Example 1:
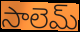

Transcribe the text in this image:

సాలెమ్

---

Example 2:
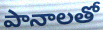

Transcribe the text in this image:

పానాలతో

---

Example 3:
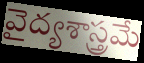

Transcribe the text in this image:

వైద్యశాస్త్రమే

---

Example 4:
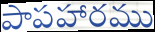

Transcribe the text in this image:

పాపహారము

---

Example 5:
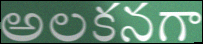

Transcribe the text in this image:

అలకనగా